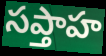
సప్తాహ